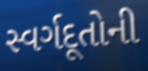
સ્વર્ગદૂતોની